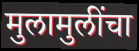
मुलामुलींचा